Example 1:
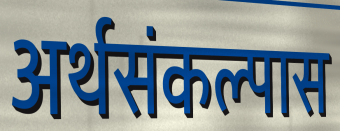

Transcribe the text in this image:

अर्थसंकल्पास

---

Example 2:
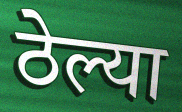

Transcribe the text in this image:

ठेल्या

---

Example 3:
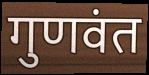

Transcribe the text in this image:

गुणवंत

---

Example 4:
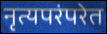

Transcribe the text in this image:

नृत्यपरंपरेत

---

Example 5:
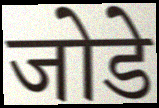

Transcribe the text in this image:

जोडे